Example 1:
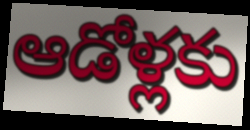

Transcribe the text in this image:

ఆడోళ్లకు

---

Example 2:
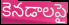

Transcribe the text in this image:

కెనడాలపై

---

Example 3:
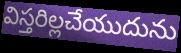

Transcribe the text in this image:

విస్తరిల్లచేయుదును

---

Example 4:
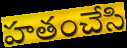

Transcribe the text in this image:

హతంచేసి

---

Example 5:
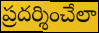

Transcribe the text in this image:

ప్రదర్శించేలా